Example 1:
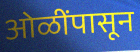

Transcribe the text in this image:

ओळींपासून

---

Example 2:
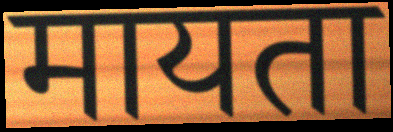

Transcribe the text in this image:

मायता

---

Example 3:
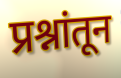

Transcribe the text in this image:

प्रश्नांतून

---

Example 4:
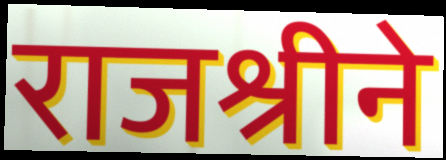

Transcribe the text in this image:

राजश्रीने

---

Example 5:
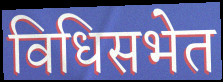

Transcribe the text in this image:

विधिसभेत